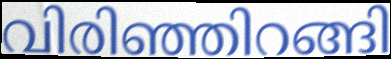
വിരിഞ്ഞിറങ്ങി